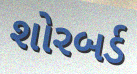
શોરબર્ડ